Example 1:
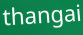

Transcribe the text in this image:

thangai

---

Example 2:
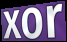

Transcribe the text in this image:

xor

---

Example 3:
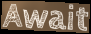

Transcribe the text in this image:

Await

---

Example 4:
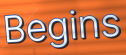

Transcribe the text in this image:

Begins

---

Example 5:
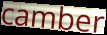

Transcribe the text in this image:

camber